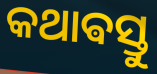
କଥାଵସ୍ତୁ